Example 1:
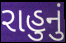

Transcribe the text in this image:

રાહુનું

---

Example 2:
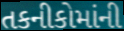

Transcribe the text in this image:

તકનીકોમાંની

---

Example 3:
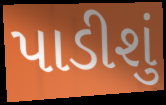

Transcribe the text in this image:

પાડીશું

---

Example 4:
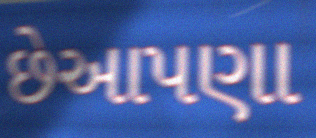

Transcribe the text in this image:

છેઆપણા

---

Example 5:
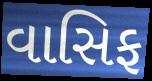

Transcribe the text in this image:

વાસિફ